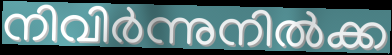
നിവിർന്നുനിൽക്ക